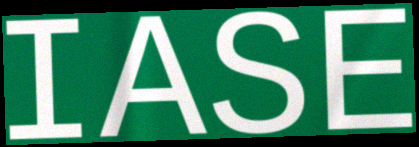
IASE